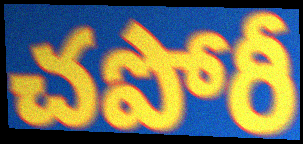
చపోరీ